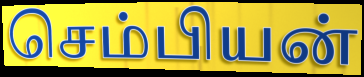
செம்பியன்